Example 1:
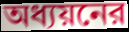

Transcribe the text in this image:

অধ্যয়নের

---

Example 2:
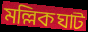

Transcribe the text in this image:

মল্লিকঘাট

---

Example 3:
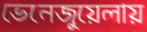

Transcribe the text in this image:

ভেনেজুয়েলায়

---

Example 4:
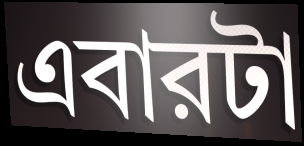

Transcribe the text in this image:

এবারটা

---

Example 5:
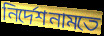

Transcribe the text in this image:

নির্দেশনামতে